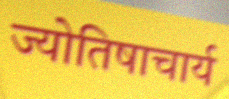
ज्योतिषाचार्य